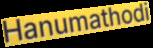
Hanumathodi